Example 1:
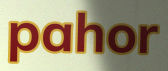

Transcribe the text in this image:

pahor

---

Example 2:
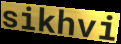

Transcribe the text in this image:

sikhvi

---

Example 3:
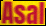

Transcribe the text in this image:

Asal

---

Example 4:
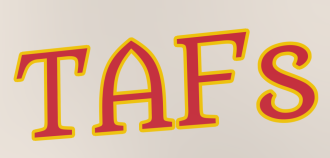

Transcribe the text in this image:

TAFs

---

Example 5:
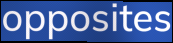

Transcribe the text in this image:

opposites